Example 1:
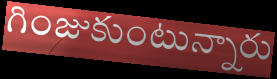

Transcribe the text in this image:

గింజుకుంటున్నారు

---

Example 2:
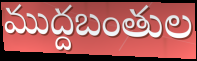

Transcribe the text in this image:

ముద్దబంతుల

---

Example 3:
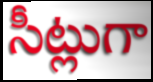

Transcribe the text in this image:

సీట్లుగా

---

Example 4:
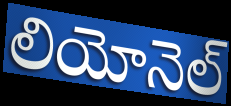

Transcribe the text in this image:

లియోనెల్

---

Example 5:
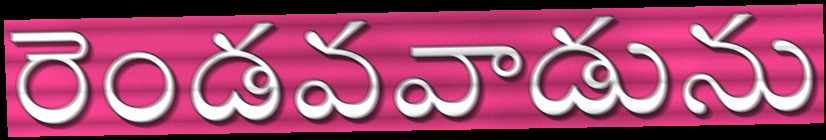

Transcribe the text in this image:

రెండవవాడును